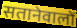
सतानेवालों